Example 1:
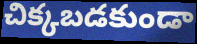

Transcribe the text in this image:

చిక్కబడకుండా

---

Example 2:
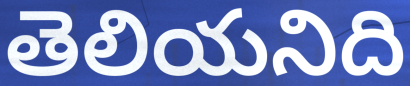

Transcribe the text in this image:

తెలియనిది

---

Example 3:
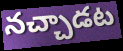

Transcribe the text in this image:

నచ్చాడట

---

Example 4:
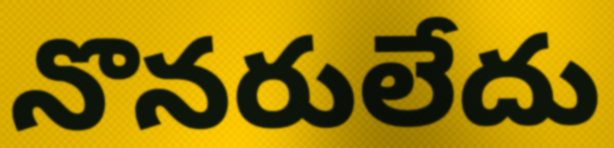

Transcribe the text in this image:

నొనరులేదు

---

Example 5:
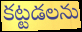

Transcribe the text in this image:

కట్టడలను